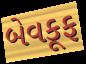
બેવકૂફ